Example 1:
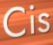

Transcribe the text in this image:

Cis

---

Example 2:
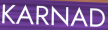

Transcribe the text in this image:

KARNAD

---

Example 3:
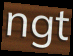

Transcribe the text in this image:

ngt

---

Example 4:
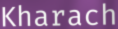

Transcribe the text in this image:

Kharach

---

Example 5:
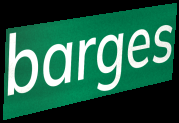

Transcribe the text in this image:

barges